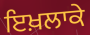
ਇਖ਼ਲਾਕੇ